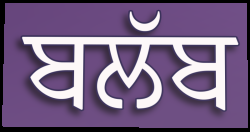
ਬਲੱਬ